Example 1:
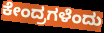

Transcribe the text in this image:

ಕೇಂದ್ರಗಳೆಂದು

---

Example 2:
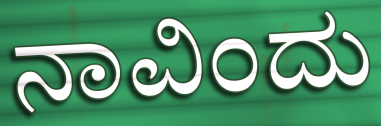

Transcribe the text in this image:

ನಾವಿಂದು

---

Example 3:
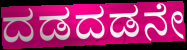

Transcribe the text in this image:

ದಡದಡನೇ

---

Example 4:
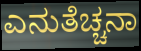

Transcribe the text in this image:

ಎನುತೆಚ್ಚನಾ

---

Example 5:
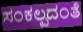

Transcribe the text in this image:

ಸಂಕಲ್ಪದಂತೆ